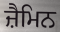
ਜ਼ੈਮਿਨ